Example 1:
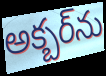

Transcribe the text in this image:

అక్బర్‌ను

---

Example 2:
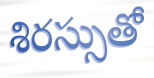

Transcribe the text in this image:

శిరస్సుతో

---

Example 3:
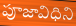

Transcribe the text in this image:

పూజావిధిని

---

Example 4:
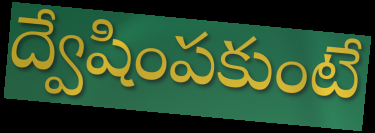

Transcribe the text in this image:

ద్వేషింపకుంటే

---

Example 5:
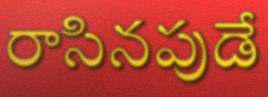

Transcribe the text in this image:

రాసినపుడే